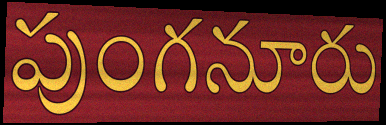
పుంగనూరు